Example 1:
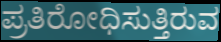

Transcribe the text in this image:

ಪ್ರತಿರೋಧಿಸುತ್ತಿರುವ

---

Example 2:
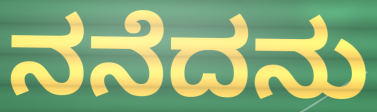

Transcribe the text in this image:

ನನೆದನು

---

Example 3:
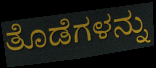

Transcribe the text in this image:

ತೊಡೆಗಳನ್ನು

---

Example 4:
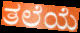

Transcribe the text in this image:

ತಲೆಯೆ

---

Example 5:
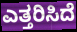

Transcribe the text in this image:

ಎತ್ತರಿಸಿದೆ